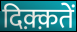
दिक़्क़तें